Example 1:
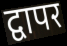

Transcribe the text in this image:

द्वापर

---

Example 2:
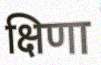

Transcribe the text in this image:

क्षिणा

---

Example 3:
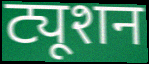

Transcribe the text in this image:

ट्यूशन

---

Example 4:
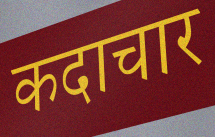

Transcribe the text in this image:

कदाचार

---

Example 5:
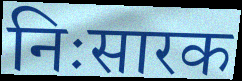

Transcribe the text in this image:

निःसारक